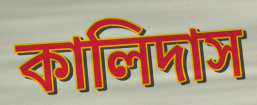
কালিদাস